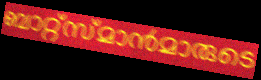
ബാറ്റ്സ്മാൻമാരുടെ